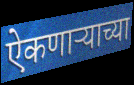
ऐकणाऱ्याच्या